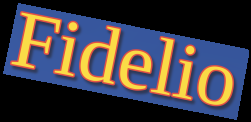
Fidelio